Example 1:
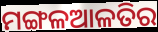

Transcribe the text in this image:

ମଙ୍ଗଳଆଳତିର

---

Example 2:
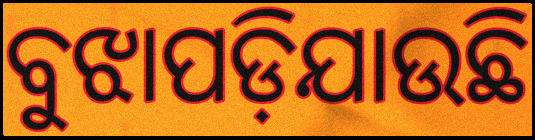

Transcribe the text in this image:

ବୁଝାପଡ଼ିଯାଉଛି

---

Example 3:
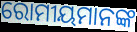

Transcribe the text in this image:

ରୋମୀୟମାନଙ୍କ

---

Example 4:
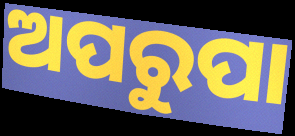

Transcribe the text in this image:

ଅପରୁପା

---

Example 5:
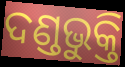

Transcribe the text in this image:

ଦଣ୍ଡଭୁକ୍ତି